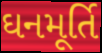
ઘનમૂર્તિ